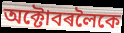
অক্টোবৰলৈকে